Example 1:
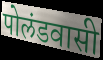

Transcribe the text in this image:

पोलंडवासी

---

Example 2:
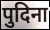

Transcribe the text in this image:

पुदिना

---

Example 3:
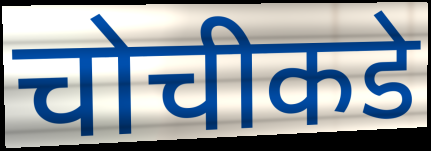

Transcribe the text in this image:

चोचीकडे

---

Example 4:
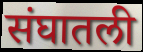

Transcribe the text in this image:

संघातली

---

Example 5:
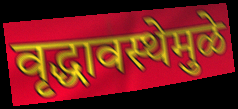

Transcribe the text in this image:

वृद्धावस्थेमुळे